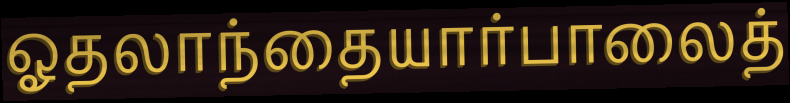
ஓதலாந்தையார்பாலைத்